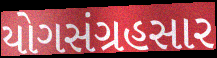
યોગસંગ્રહસાર